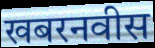
खबरनवीस